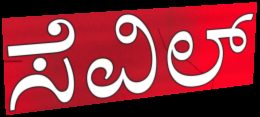
ಸೆವಿಲ್